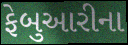
ફેબુઆરીના